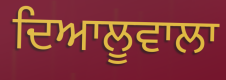
ਦਿਆਲੂਵਾਲਾ